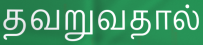
தவறுவதால்